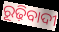
ରୂଢ଼ିବାଦୀ